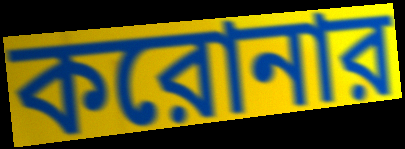
করোনার